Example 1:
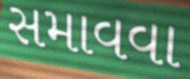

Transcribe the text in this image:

સમાવવા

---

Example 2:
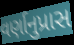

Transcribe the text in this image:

વર્ણાનુપ્રાસ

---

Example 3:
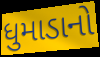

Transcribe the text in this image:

ધુમાડાનો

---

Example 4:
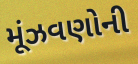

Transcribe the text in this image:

મૂંઝવણોની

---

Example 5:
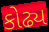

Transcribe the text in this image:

કોઢ્ય